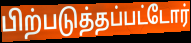
பிற்படுத்தப்பட்டோர்